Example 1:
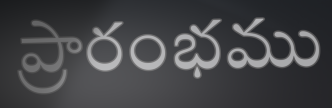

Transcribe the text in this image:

ప్రారంభము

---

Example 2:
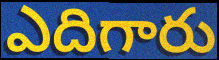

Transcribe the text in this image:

ఎదిగారు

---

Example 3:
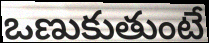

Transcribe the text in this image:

ఒణుకుతుంటే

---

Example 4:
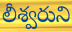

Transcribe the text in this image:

లీశ్వరుని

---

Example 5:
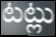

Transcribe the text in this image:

టట్లు